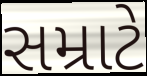
સમ્રાટે